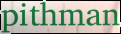
pithman